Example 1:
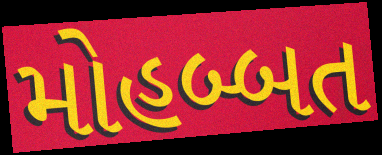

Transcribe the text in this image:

મોહબ્બત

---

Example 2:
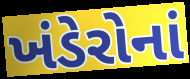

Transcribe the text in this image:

ખંડેરોનાં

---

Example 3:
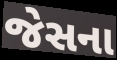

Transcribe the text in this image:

જેસના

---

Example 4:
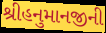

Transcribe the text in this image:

શ્રીહનુમાનજીની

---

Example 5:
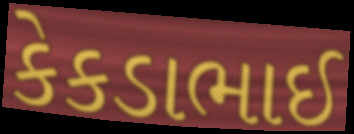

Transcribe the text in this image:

કેકડાભાઈ